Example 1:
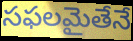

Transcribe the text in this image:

సఫలమైతేనే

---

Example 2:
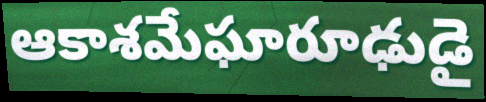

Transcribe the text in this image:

ఆకాశమేఘారూఢుడై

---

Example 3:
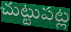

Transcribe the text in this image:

చుట్టుపట్ల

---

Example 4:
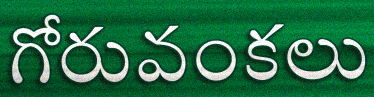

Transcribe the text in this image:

గోరువంకలు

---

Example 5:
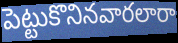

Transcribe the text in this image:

పెట్టుకొనినవారలారా